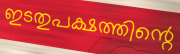
ഇടതുപക്ഷത്തിന്റെ